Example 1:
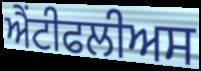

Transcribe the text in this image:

ਐਂਟੀਫਲੀਅਸ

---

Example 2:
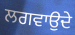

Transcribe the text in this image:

ਲਗਵਾਉਦੇ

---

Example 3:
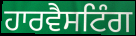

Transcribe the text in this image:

ਹਾਰਵੈਸਟਿੰਗ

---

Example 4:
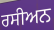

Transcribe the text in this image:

ਰਸੀਅਨ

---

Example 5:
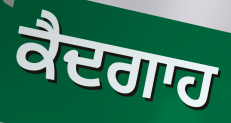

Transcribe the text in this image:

ਕੈਦਗਾਹ